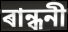
ৰান্ধনী